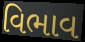
વિભાવ